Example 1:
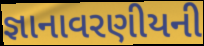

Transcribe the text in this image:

જ્ઞાનાવરણીયની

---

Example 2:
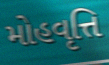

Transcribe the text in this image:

મોહવૃત્તિ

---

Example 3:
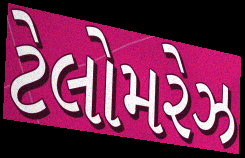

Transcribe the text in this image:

ટેલોમરેઝ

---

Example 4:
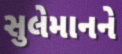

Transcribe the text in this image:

સુલેમાનને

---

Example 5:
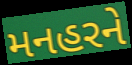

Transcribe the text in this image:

મનહરને